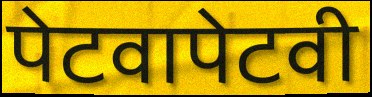
पेटवापेटवी